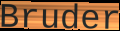
Bruder